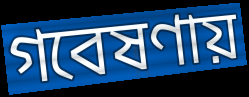
গবেষণায়